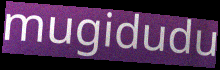
mugidudu